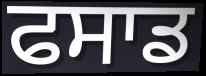
ਫਸਾਡ